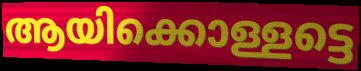
ആയിക്കൊള്ളട്ടെ